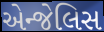
એન્જેલિસ